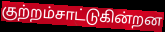
குற்றம்சாட்டுகின்றன